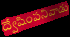
ద్వేషింపనివాడు